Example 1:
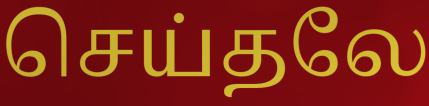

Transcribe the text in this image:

செய்தலே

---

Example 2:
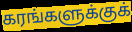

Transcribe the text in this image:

கரங்களுக்குக்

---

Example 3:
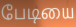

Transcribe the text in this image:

பேடியை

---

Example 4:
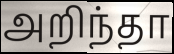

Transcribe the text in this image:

அறிந்தா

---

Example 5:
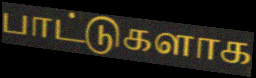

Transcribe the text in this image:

பாட்டுகளாக